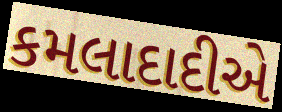
કમલાદાદીએ